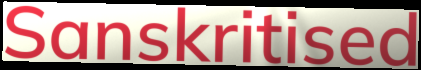
Sanskritised